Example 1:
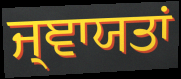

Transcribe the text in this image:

ਜ੍ਞਾਯਤਾਂ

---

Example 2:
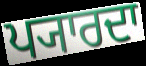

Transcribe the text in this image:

ਪ੍ਯਾਰਦਾ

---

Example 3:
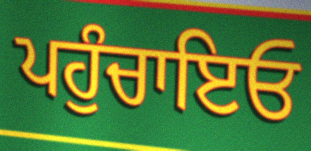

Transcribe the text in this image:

ਪਹੁੰਚਾਇਓ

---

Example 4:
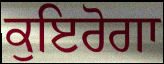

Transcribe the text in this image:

ਕੁਇਰੋਗਾ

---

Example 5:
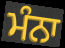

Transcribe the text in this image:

ਮੰਨਾ